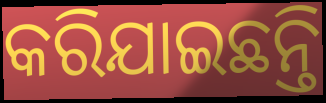
କରିଯାଇଛନ୍ତି